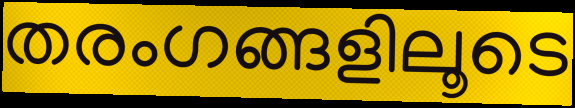
തരംഗങ്ങളിലൂടെ